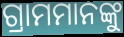
ଗ୍ରାମମାନଙ୍କୁ